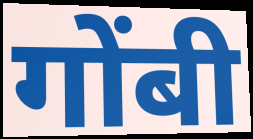
गोंबी